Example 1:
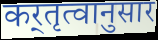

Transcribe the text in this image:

कर्तृत्वानुसार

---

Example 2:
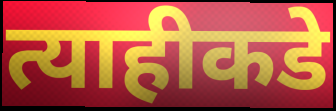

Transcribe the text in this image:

त्याहीकडे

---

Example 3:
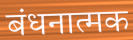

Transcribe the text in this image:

बंधनात्मक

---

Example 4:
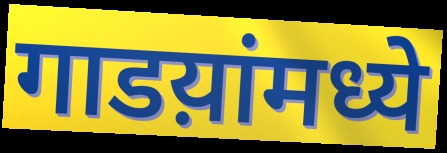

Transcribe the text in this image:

गाडय़ांमध्ये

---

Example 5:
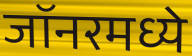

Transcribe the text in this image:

जॉनरमध्ये